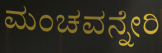
ಮಂಚವನ್ನೇರಿ